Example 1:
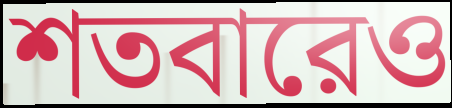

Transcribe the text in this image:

শতবারেও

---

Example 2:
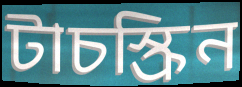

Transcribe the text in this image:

টাচস্ক্রিন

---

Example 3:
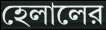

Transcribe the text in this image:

হেলালের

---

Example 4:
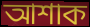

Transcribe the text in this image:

আশাক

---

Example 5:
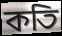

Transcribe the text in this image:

কতি